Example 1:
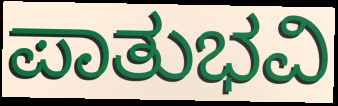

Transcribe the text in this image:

ಪಾತುಭವಿ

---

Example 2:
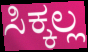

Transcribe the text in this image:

ಸಿಕ್ಕಲ್ಲ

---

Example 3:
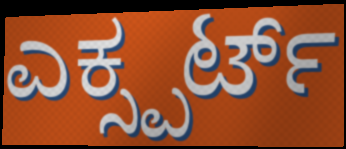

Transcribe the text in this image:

ಎಕ್ಸ್ಪರ್ಟ್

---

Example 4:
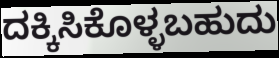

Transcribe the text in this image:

ದಕ್ಕಿಸಿಕೊಳ್ಳಬಹುದು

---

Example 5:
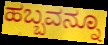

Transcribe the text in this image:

ಹಬ್ಬವನ್ನೂ